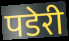
पडेरी